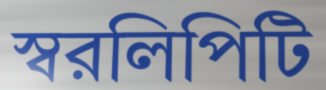
স্বরলিপিটি